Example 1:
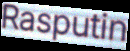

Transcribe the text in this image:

Rasputin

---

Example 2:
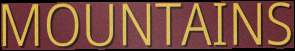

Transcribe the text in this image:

MOUNTAINS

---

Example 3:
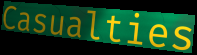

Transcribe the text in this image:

Casualties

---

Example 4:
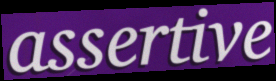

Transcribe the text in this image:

assertive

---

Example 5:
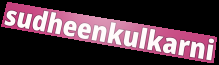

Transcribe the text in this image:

sudheenkulkarni